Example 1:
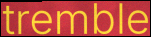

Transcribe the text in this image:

tremble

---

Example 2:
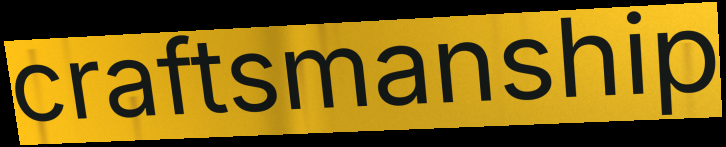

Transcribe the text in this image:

craftsmanship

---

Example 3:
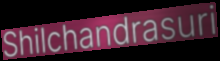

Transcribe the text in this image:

Shilchandrasuri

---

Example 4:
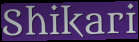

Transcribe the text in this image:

Shikari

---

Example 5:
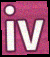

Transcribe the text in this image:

iv